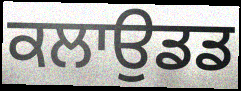
ਕਲਾਉਡਡ